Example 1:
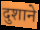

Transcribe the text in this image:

दुशाने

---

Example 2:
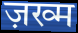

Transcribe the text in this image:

ज़ख्म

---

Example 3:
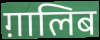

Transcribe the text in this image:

ग़ालिब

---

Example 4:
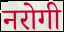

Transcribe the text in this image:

नरोगी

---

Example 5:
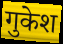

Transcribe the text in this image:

गुकेश